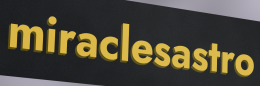
miraclesastro